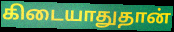
கிடையாதுதான்